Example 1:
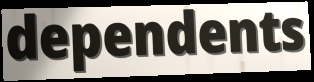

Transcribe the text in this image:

dependents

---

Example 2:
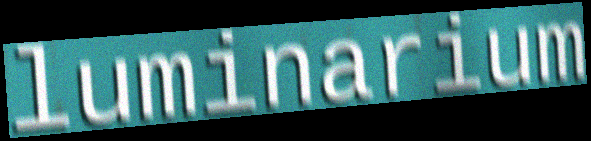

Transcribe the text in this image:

luminarium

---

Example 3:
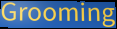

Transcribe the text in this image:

Grooming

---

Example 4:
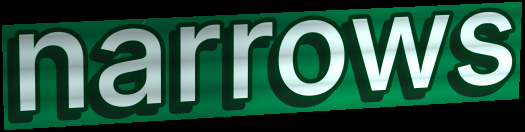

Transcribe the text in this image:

narrows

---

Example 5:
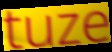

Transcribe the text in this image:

tuze